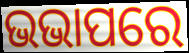
ଭଭାପରେ